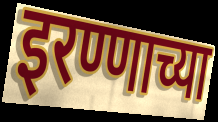
इरण्णाच्या